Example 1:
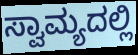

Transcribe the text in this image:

ಸ್ವಾಮ್ಯದಲ್ಲಿ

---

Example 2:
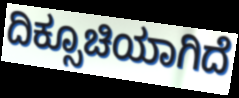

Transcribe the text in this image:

ದಿಕ್ಸೂಚಿಯಾಗಿದೆ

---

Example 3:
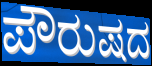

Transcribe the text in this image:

ಪೌರುಷದ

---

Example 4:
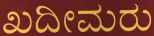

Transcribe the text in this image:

ಖದೀಮರು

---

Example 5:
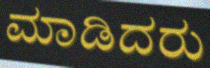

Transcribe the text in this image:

ಮಾಡಿದರು